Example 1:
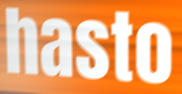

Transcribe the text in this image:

hasto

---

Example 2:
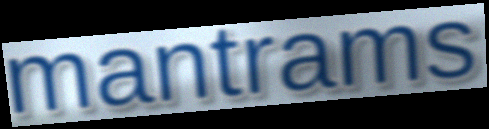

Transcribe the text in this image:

mantrams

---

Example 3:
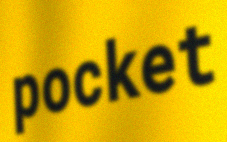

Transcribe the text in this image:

pocket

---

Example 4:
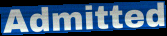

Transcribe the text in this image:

Admitted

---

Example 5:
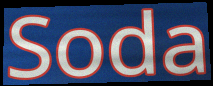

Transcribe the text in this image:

Soda